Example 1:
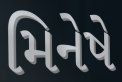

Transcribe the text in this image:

મિનેષે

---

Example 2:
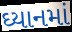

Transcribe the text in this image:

ઘ્યાનમાં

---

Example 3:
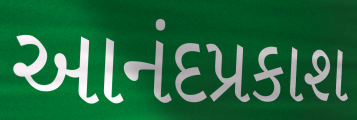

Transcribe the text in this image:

આનંદપ્રકાશ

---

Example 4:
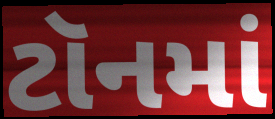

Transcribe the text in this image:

ટૉનમાં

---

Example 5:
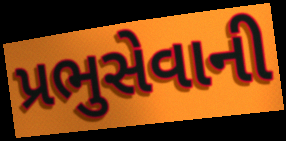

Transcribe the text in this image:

પ્રભુસેવાની